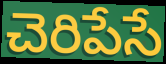
చెరిపేసే